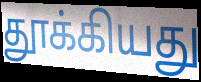
தூக்கியது